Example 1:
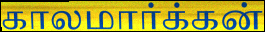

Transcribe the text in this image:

காலமார்க்கன்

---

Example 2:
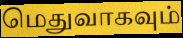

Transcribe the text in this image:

மெதுவாகவும்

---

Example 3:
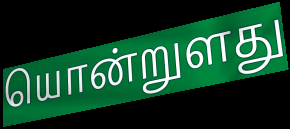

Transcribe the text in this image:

யொன்றுளது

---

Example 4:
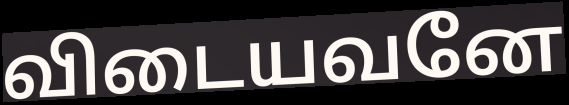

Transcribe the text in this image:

விடையவனே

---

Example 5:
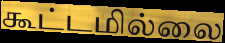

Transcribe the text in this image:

கூட்டமில்லை